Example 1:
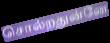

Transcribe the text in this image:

சொல்றதுன்னே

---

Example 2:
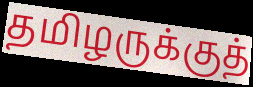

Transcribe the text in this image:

தமிழருக்குத்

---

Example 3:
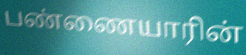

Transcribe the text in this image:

பண்ணையாரின்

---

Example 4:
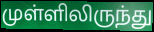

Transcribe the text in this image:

முள்ளிலிருந்து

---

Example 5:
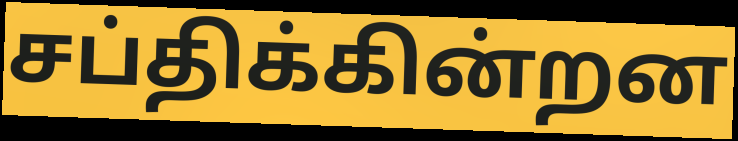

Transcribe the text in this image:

சப்திக்கின்றன